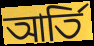
আর্তি